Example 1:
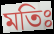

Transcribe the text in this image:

মতিঃ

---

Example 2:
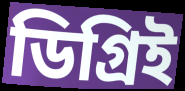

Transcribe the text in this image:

ডিগ্রিই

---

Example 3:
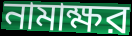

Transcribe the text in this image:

নামাক্ষর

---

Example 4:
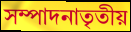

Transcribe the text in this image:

সম্পাদনাতৃতীয়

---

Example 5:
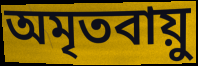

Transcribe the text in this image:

অমৃতবায়ু